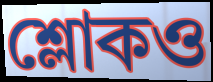
শ্লোকও